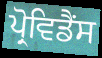
ਪ੍ਰੋਵਿਡੈਂਸ